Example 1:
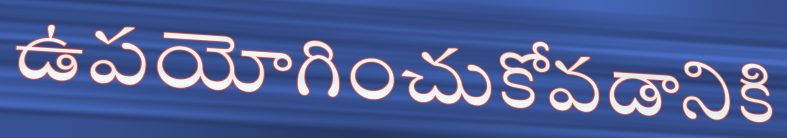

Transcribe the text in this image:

ఉపయోగించుకోవడానికి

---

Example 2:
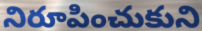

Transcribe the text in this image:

నిరూపించుకుని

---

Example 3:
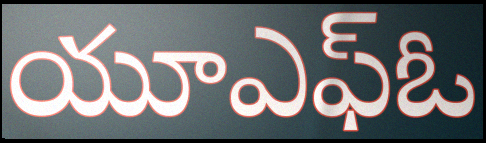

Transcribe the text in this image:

యూఎఫ్ఓ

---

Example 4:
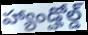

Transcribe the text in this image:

హ్యాండ్హోల్డ్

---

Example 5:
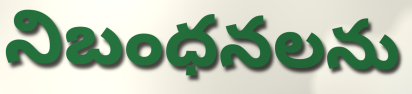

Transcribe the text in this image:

నిబంధనలను